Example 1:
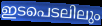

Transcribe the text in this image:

ഇടപെടലിലും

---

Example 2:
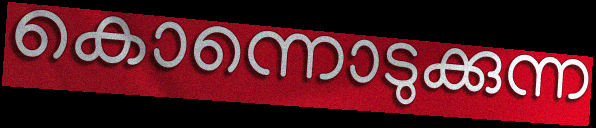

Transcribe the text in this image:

കൊന്നൊടുക്കുന്ന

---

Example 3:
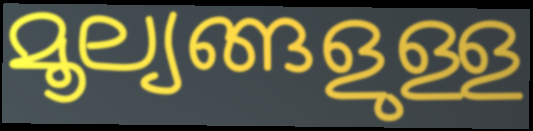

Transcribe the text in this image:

മൂല്യങ്ങളുള്ള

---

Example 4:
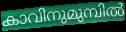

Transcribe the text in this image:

കാവിനുമുമ്പിൽ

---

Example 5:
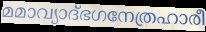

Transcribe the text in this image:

മമാവ്യാദ്ഭഗനേത്രഹാരീ